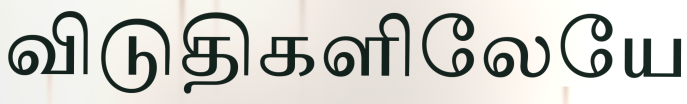
விடுதிகளிலேயே